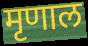
मृणाल